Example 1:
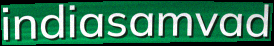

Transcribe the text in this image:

indiasamvad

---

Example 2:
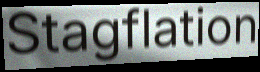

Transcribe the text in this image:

Stagflation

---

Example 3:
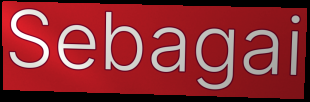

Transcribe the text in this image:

Sebagai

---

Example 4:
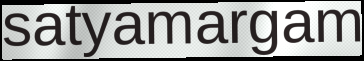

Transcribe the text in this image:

satyamargam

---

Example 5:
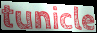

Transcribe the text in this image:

tunicle